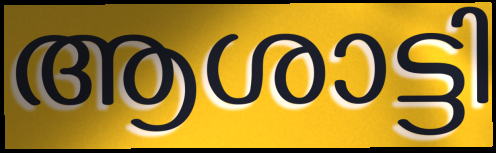
ആശാട്ടി